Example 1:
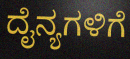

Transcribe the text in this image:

ದೈನ್ಯಗಳಿಗೆ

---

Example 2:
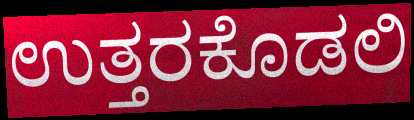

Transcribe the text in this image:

ಉತ್ತರಕೊಡಲಿ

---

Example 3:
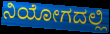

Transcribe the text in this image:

ನಿಯೋಗದಲ್ಲಿ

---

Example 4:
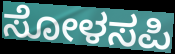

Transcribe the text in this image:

ಸೋಳಸಪಿ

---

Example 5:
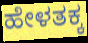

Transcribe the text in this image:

ಹೇಳತಕ್ಕ